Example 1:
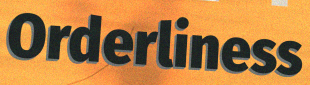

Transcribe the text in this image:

Orderliness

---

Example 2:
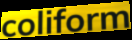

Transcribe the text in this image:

coliform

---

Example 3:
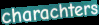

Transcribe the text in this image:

charachters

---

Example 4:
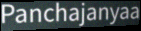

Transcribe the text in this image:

Panchajanyaa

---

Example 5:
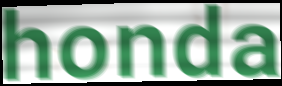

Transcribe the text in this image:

honda